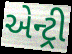
એન્ટ્રી